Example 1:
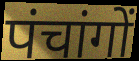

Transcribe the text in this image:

पंचांगों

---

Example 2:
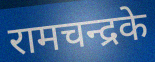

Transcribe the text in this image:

रामचन्द्रके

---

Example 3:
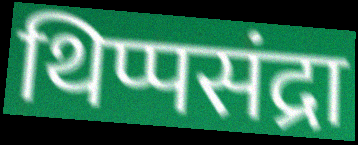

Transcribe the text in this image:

थिप्पसंद्रा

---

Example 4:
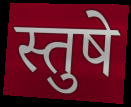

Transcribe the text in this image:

स्तुषे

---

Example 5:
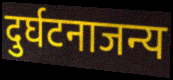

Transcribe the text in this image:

दुर्घटनाजन्य